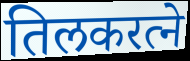
तिलकरत्ने